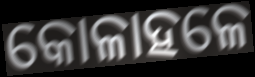
କୋଳାହଳେ